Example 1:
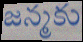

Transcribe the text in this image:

జన్మకు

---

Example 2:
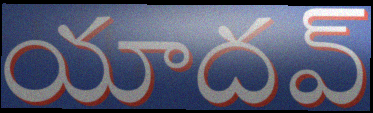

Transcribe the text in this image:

యాదవ్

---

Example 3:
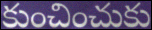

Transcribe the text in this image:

కుంచించుకు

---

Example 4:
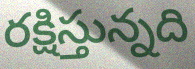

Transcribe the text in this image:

రక్షిస్తున్నది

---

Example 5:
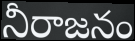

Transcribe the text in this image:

నీరాజనం